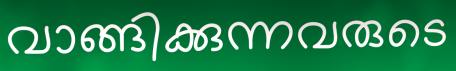
വാങ്ങിക്കുന്നവരുടെ